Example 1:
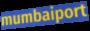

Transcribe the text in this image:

mumbaiport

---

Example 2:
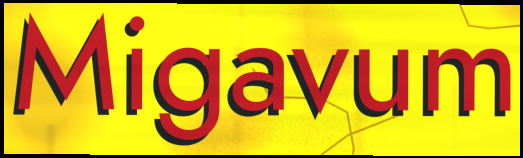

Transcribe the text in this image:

Migavum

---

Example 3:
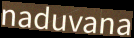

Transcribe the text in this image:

naduvana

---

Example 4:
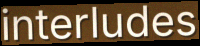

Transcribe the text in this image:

interludes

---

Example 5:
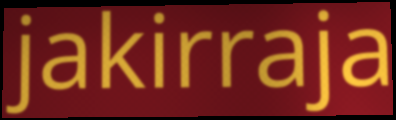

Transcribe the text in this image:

jakirraja